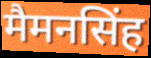
मैमनसिंह